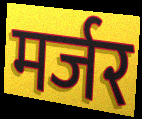
मर्जर